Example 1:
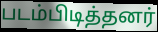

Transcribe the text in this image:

படம்பிடித்தனர்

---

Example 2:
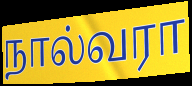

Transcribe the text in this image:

நால்வரா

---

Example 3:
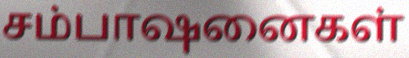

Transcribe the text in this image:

சம்பாஷனைகள்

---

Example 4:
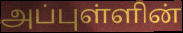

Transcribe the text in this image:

அப்புள்ளின்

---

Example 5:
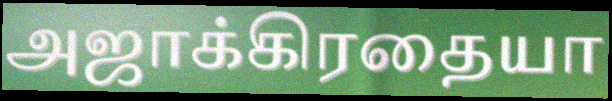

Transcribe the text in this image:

அஜாக்கிரதையா